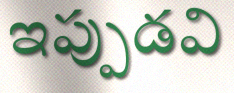
ఇప్పుడవి